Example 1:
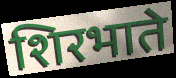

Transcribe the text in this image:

शिरभाते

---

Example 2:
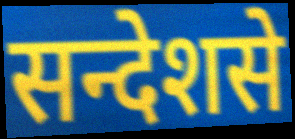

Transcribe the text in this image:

सन्देशसे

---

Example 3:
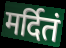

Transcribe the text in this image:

मर्दितं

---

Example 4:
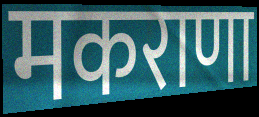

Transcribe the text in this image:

मकराणा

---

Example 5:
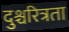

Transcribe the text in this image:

दुश्चरित्रता